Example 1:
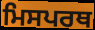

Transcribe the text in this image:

ਮਿਸਪਰਥ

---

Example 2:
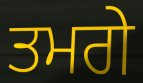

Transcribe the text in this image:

ਤਮਗੇ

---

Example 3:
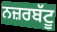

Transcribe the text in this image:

ਨਜ਼ਰਬੱਟੂ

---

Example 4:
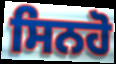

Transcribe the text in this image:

ਸਿਨਹੋ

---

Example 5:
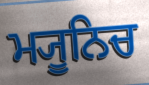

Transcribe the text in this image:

ਮ੍ਯੂਨਿਚ